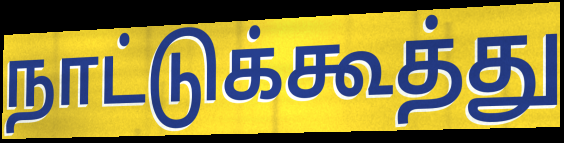
நாட்டுக்கூத்து